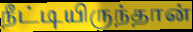
நீட்டியிருந்தான்